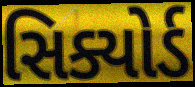
સિક્યોર્ડ